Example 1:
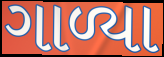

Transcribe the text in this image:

ગાળ્યા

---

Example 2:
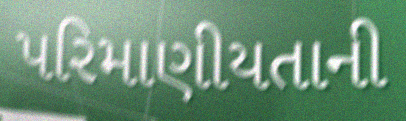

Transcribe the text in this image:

પરિમાણીયતાની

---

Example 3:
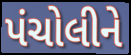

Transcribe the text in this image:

પંચોલીને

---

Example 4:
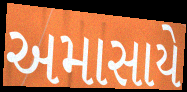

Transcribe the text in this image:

અમાસાયે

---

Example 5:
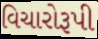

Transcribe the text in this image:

વિચારોરૂપી